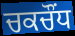
ਚਕਚੌਂਧ